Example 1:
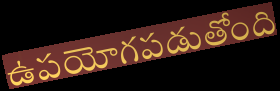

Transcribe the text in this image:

ఉపయోగపడుతోంది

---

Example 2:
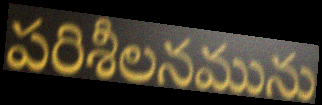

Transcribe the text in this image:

పరిశీలనమును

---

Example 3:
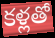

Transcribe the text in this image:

కళ్లతో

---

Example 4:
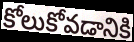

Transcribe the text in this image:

కోలుకోవడానికి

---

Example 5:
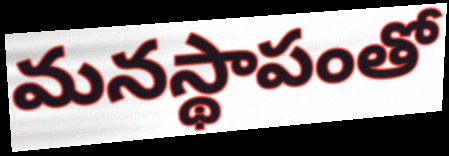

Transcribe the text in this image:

మనస్థాపంతో